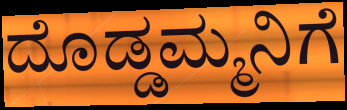
ದೊಡ್ಡಮ್ಮನಿಗೆ